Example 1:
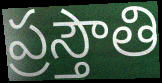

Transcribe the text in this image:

ప్రస్తౌతి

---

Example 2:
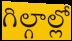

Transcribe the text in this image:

గిల్గాల్లో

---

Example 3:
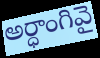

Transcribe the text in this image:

అర్ధాంగివై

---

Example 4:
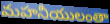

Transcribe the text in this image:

మహనీయులంతా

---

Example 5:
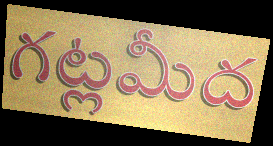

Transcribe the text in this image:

గట్లమీద